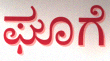
ಘೂಗೆ